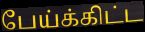
பேய்க்கிட்ட